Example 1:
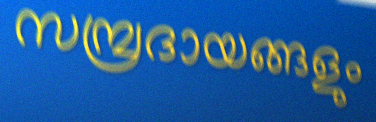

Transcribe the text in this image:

സമ്പ്രദായങ്ങളും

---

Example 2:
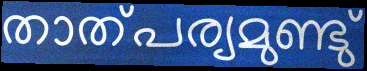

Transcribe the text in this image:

താത്പര്യമുണ്ടു്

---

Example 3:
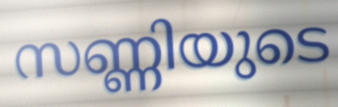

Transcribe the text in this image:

സണ്ണിയുടെ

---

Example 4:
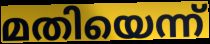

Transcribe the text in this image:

മതിയെന്ന്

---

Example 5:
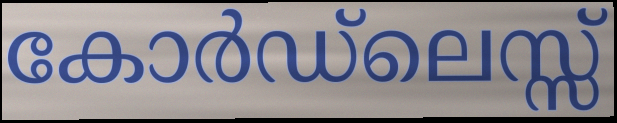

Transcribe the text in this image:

കോർഡ്ലെസ്സ്